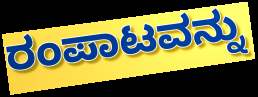
ರಂಪಾಟವನ್ನು